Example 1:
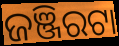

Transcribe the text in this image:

ଜଞ୍ଜିରଟା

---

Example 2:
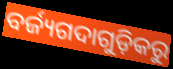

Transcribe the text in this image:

ବର୍ଜ୍ୟଗଦାଗୁଡ଼ିକରୁ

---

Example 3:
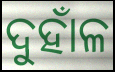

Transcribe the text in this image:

ଦୁହାଁଳ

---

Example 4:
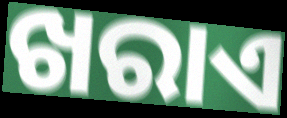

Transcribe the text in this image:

ଖରାଏ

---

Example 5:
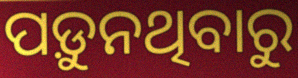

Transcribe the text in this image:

ପଡ଼ୁନଥିବାରୁ